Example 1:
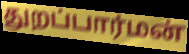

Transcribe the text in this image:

துறப்பார்மன்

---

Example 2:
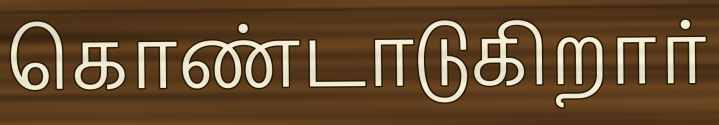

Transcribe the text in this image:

கொண்டாடுகிறார்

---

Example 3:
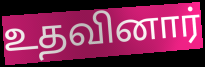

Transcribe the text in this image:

உதவினார்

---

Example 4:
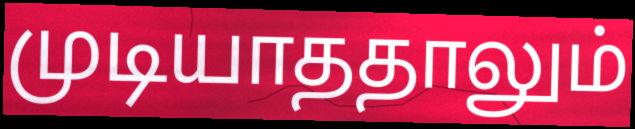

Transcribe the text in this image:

முடியாததாலும்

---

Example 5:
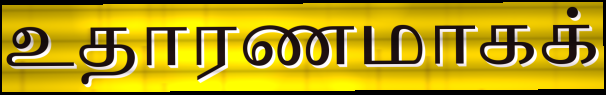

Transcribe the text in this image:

உதாரணமாகக்